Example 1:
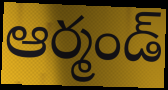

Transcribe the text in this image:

ఆర్మండ్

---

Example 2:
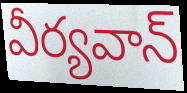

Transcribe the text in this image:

వీర్యవాన్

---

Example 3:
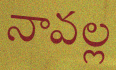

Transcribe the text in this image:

నావల్ల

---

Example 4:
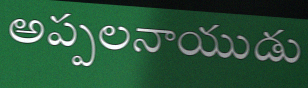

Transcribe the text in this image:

అప్పలనాయుడు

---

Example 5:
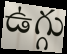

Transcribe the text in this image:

ఉగ్గు